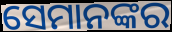
ସେମାନଙ୍କର